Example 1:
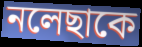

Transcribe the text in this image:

নলেছাকে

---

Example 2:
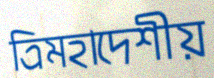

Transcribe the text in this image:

ত্রিমহাদেশীয়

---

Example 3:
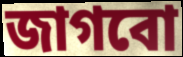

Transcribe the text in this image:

জাগবো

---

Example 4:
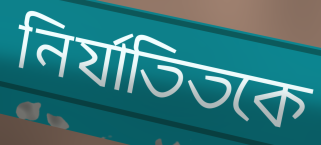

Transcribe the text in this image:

নির্যাতিতকে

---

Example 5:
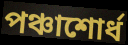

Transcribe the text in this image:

পঞ্চাশোর্ধ